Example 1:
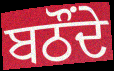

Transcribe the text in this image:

ਬਠੌਂਦੇ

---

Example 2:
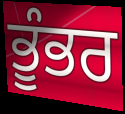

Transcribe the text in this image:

ਭੂੰਭਰ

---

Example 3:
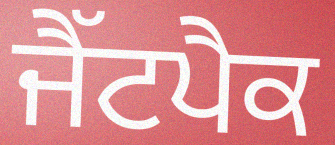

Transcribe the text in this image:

ਜੈੱਟਪੈਕ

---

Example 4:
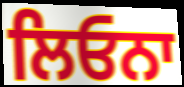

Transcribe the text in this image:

ਲਿਓਨਾ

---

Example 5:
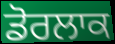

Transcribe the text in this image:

ਡੋਰਲਾਕ